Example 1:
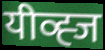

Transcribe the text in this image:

यीव्ह्ज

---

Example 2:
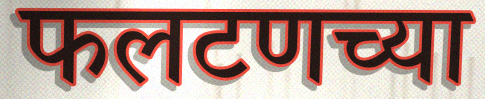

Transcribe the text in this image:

फलटणच्या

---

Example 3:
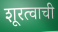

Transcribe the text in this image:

शूरत्वाची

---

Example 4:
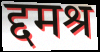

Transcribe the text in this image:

द्दमश्र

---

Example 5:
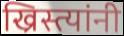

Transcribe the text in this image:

ख्रिस्त्यांनी